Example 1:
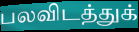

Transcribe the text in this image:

பலவிடத்துக்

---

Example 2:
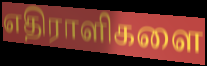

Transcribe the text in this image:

எதிராளிகளை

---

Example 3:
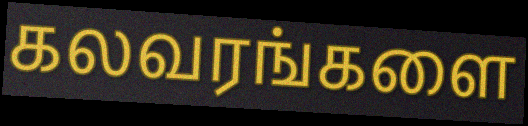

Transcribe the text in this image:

கலவரங்களை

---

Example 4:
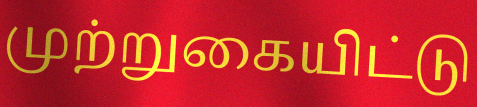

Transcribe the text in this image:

முற்றுகையிட்டு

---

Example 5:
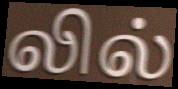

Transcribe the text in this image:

லில்